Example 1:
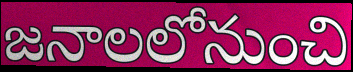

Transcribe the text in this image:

జనాలలోనుంచి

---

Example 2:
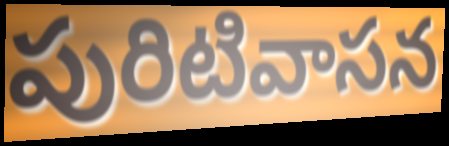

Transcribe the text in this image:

పురిటివాసన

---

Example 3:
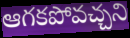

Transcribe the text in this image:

ఆగకపోవచ్చని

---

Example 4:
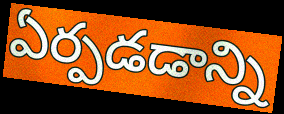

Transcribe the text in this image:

ఏర్పడడాన్ని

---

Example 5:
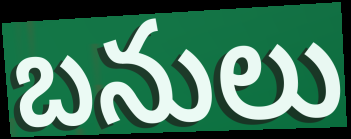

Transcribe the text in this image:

బనులు